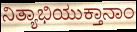
ನಿತ್ಯಾಭಿಯುಕ್ತಾನಾಂ